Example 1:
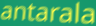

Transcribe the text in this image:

antarala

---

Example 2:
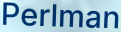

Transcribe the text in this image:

Perlman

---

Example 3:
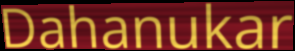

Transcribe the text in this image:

Dahanukar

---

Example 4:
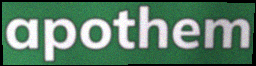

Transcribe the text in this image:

apothem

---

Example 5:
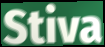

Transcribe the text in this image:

Stiva